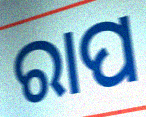
ରାପ